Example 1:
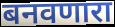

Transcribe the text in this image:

बनवणारा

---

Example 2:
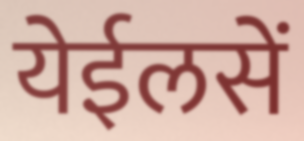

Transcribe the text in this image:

येईलसें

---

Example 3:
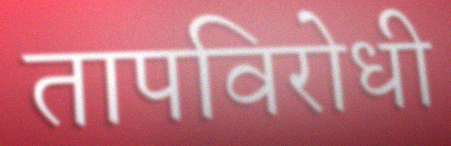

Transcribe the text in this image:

तापविरोधी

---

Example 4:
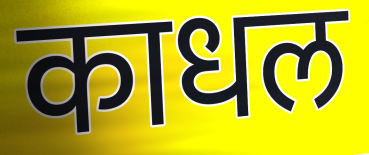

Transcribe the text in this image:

काधल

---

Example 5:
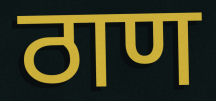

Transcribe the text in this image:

ठाण